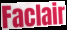
Faclair